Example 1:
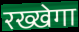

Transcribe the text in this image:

रख्खेगा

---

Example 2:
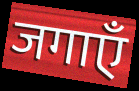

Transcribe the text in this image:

जगाएँ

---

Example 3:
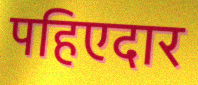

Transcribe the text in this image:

पहिएदार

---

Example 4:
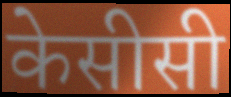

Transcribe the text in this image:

केसीसी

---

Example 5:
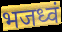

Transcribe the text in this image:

भजध्वं